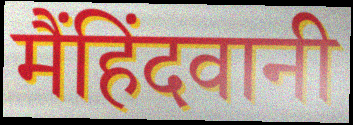
मैंहिंदवानी